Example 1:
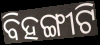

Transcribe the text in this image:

ବିହଙ୍ଗୀଟି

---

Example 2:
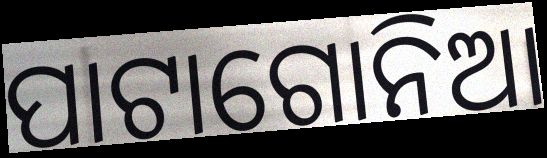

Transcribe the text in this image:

ପାଟାଗୋନିଆ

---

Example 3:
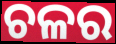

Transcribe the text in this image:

ଚଳର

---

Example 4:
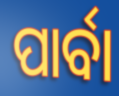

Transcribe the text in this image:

ପାର୍ବା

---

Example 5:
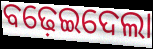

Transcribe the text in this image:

ବଢ଼େଇଦେଲା